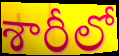
శారీలో